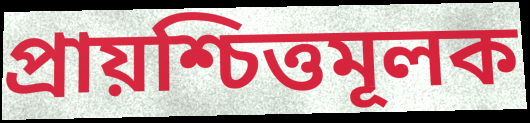
প্রায়শ্চিত্তমূলক